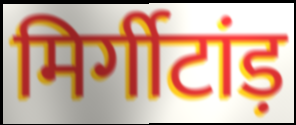
मिर्गीटांड़